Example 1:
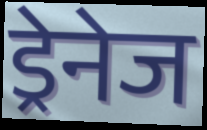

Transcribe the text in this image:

ड्रेनेज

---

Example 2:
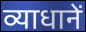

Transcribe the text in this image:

व्याधानें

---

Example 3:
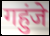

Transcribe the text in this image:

गहुंजे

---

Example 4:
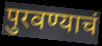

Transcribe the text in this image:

पुरवण्याचं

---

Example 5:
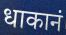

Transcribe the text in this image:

धाकानं